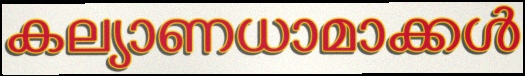
കല്യാണധാമാക്കൾ